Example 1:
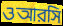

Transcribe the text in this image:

ওআরসি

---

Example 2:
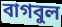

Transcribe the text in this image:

বাগবুল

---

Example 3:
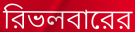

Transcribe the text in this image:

রিভলবারের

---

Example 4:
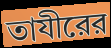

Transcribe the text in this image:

তাযীরের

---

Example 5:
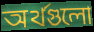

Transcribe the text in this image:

অর্থগুলো